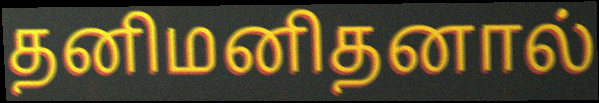
தனிமனிதனால்